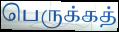
பெருக்கத்